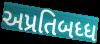
અપ્રતિબધ્ધ